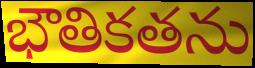
భౌతికతను